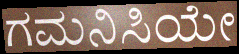
ಗಮನಿಸಿಯೇ